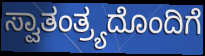
ಸ್ವಾತಂತ್ರ್ಯದೊಂದಿಗೆ